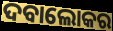
ଦବାଲୋକର